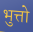
भुत्तो